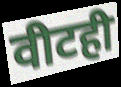
वीटही